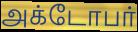
அக்டோபர்